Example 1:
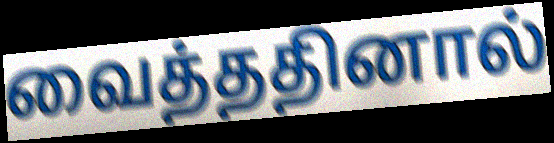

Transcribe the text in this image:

வைத்ததினால்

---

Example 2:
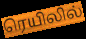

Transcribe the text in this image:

ரெயிலில்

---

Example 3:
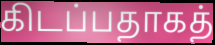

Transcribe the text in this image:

கிடப்பதாகத்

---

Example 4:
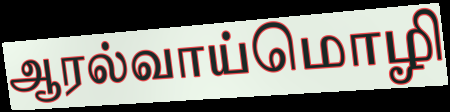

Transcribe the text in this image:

ஆரல்வாய்மொழி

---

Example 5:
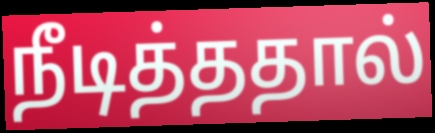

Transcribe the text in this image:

நீடித்ததால்